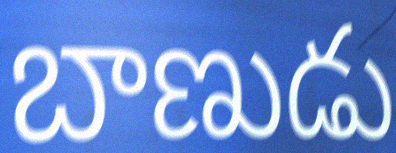
బాణుడు